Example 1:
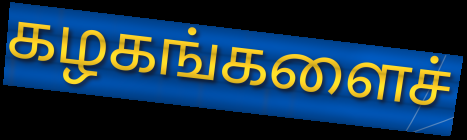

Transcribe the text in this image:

கழகங்களைச்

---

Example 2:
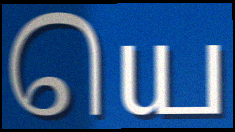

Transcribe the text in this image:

யெ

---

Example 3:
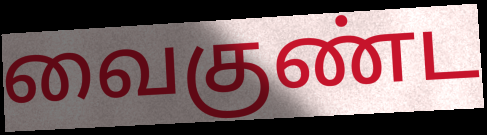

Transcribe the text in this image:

வைகுண்ட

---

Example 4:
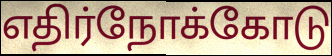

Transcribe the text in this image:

எதிர்நோக்கோடு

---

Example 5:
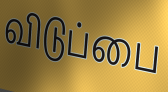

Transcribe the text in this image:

விடுப்பை